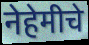
नेहेमीचे